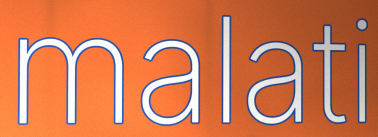
malati